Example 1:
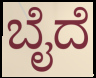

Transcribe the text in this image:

ಬೈದೆ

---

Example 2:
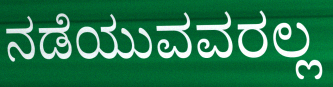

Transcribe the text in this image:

ನಡೆಯುವವರಲ್ಲ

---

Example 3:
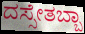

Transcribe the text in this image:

ದಸ್ಸೇತಬ್ಬಾ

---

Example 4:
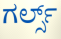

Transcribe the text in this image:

ಗರ್ಲ್ಸ್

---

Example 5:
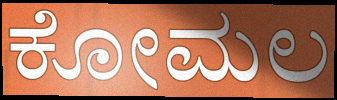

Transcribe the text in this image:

ಕೋಮಲ